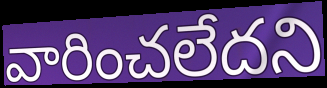
వారించలేదని